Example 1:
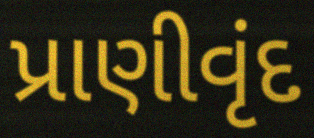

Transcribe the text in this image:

પ્રાણીવૃંદ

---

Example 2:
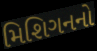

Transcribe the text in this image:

મિશિગનનો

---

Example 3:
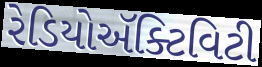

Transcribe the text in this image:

રેડિયોઍક્ટિવિટી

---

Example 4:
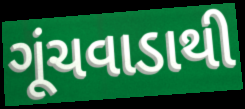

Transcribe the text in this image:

ગૂંચવાડાથી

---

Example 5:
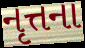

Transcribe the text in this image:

નૃત્તના